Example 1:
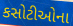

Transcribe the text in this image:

કસોટીઓના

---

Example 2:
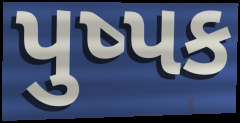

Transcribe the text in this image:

પુષ્પક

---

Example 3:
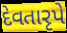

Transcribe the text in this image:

દેવતારૃપે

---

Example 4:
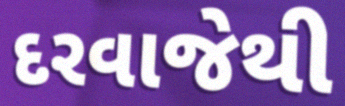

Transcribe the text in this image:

દરવાજેથી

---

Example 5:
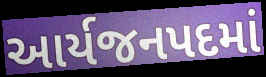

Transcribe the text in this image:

આર્યજનપદમાં